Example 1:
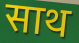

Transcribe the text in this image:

साथ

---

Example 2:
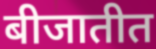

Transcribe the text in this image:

बीजातीत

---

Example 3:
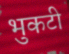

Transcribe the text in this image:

भुकटी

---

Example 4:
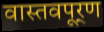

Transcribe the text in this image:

वास्तवपूर्ण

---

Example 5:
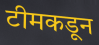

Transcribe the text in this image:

टीमकडून